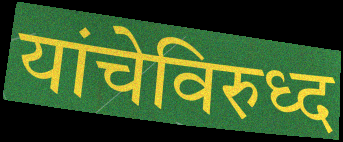
यांचेविरुध्द